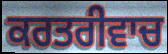
ਕਰਤਰੀਵਾਚ